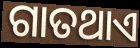
ଗାତଥାଏ